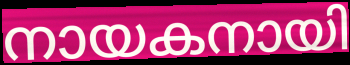
നായകനായി